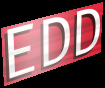
EDD